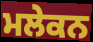
ਮਲੇਕਨ